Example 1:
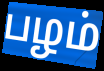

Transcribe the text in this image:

பழம்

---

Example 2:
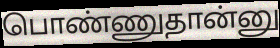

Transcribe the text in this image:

பொண்ணுதான்னு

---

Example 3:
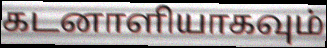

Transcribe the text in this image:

கடனாளியாகவும்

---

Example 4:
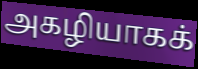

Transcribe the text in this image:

அகழியாகக்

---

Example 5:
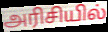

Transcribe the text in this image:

அரிசியில்